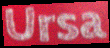
Ursa